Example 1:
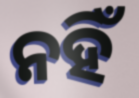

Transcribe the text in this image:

ନହିଁ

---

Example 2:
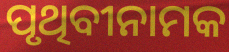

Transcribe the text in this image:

ପୃଥିବୀନାମକ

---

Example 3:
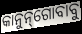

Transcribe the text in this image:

କାନୁନ୍‌ଗୋବାବୁ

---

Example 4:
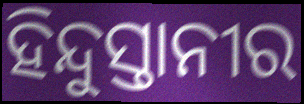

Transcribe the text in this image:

ହିନ୍ଦୁସ୍ତାନୀର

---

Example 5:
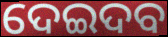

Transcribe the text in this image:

ଦେଇଦବ